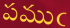
పముఁ